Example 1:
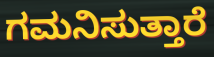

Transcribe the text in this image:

ಗಮನಿಸುತ್ತಾರೆ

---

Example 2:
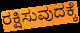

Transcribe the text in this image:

ರಕ್ಷಿಸುವುದಕ್ಕೆ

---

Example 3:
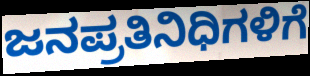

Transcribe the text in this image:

ಜನಪ್ರತಿನಿಧಿಗಳಿಗೆ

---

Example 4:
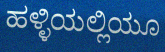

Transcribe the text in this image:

ಹಳ್ಳಿಯಲ್ಲಿಯೂ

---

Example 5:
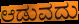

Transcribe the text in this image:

ಆಡುವದು